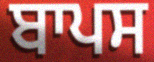
ਬਾਪਸ